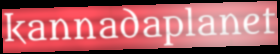
kannadaplanet